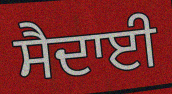
ਸੈਦਾਈ